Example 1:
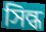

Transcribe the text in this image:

সিন্ধ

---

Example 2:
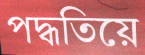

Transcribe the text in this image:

পদ্ধতিয়ে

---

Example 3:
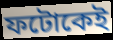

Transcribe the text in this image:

ফটোকেই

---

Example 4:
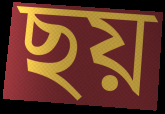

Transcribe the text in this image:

ছয়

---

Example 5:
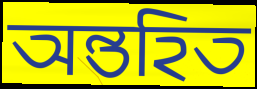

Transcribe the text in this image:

অন্তহিত